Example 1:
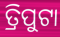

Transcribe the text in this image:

ତ୍ରିପୁଟା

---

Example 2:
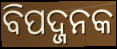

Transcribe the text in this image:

ବିପଦ୍ଜନକ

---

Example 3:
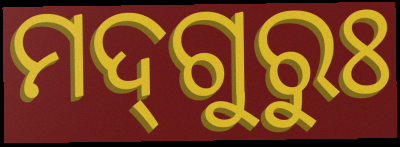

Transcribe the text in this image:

ମଦ୍‌ଗୁରୁଃ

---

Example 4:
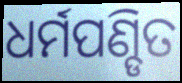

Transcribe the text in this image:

ଧର୍ମପଣ୍ଡିତ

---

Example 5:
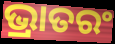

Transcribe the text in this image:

ଭ୍ରାତରଂ